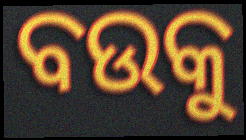
ବଉକୁ